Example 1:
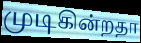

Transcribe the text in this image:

முடிகின்றதா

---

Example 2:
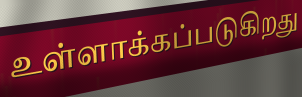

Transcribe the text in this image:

உள்ளாக்கப்படுகிறது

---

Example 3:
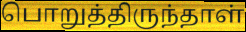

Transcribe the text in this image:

பொறுத்திருந்தாள்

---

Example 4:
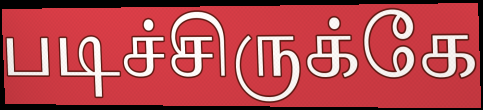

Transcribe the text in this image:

படிச்சிருக்கே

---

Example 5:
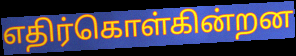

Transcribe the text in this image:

எதிர்கொள்கின்றன